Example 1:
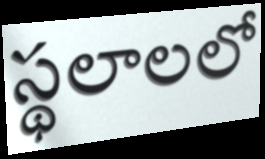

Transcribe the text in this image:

స్థలాలలో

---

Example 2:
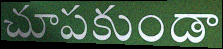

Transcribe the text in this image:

చూపకుండా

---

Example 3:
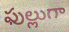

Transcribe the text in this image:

ఫుల్లుగా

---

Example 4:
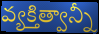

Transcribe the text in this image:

వ్యక్తిత్వాన్నీ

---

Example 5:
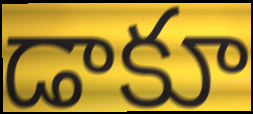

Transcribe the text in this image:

డాకూ